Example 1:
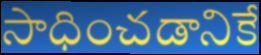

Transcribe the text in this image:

సాధించడానికే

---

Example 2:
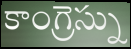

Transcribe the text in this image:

కాంగ్రెస్ను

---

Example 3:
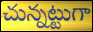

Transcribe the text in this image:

చున్నట్టుగా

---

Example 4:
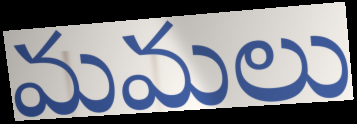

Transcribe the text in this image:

మమలు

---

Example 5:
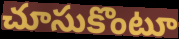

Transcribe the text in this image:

చూసుకొంటూ